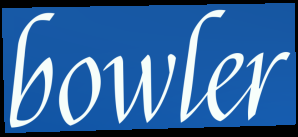
bowler